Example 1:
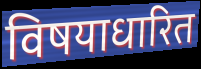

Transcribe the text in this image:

विषयाधारित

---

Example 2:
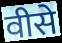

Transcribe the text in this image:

वीसे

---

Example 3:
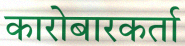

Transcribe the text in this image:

कारोबारकर्ता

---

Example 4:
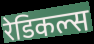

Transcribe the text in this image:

रेडिकल्स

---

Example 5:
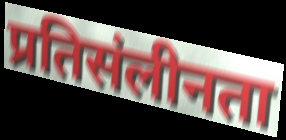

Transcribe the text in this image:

प्रतिसंलीनता